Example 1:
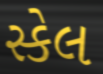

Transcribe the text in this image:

સ્કેલ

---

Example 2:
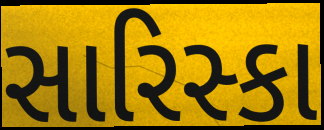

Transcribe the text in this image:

સારિસ્કા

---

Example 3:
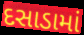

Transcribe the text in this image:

દસાડામાં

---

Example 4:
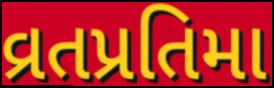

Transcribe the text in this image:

વ્રતપ્રતિમા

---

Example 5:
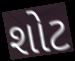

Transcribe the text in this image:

શોટ